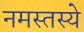
नमस्तस्ये